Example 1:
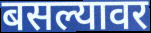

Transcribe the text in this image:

बसल्यावर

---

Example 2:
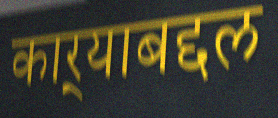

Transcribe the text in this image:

कार्याबद्दल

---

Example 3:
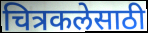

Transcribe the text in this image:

चित्रकलेसाठी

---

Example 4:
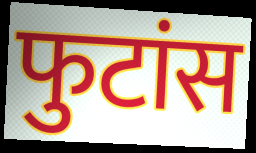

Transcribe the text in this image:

फुटांस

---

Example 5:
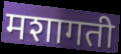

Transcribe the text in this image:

मशागती